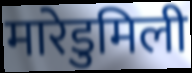
मारेडुमिली